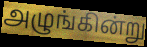
அழுங்கின்று